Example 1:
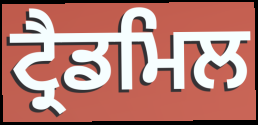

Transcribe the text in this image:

ਟ੍ਰੈਡਮਿਲ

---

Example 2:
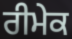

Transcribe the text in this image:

ਰੀਮੇਕ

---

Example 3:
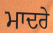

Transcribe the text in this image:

ਮਾਦਰੇ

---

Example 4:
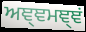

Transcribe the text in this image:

ਅਞ੍ਞਮਞ੍ਞਂ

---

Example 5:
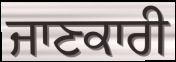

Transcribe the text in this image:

ਜਾਣਕਾਰੀ